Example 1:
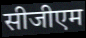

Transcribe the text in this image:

सीजीएम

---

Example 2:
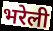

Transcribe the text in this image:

भरेली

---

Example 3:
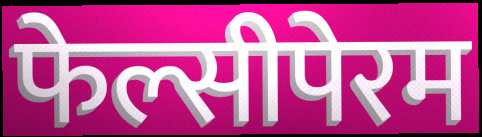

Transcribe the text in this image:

फेल्सीपेरम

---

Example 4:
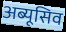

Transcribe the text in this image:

अब्यूसिव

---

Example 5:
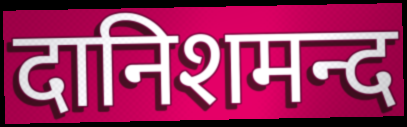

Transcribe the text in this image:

दानिशमन्द